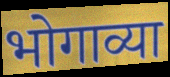
भोगाव्या